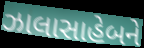
ઝાલાસાહેબને